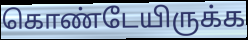
கொண்டேயிருக்க